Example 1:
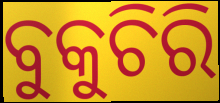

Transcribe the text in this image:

ବୁକୁଚିରି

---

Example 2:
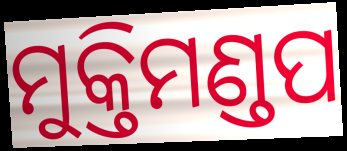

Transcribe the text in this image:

ମୁକ୍ତିମଣ୍ଡପ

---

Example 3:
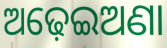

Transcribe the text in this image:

ଅଢ଼େଇଅଣା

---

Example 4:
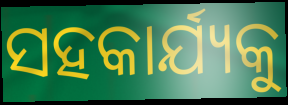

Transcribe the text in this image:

ସହକାର୍ଯ୍ୟକୁ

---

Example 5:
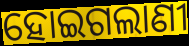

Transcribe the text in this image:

ହୋଇଗଲାଣୀ